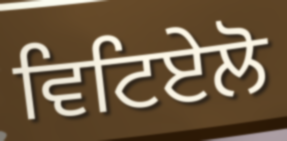
ਵਿਟਿਏਲੋ